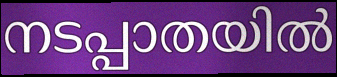
നടപ്പാതയിൽ